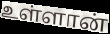
உள்ளான்